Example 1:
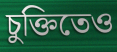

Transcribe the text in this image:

চুক্তিতেও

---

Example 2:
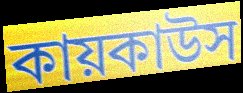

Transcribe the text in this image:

কায়কাউস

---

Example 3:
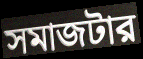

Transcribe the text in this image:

সমাজটার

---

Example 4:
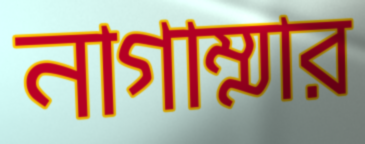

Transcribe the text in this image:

নাগাম্মার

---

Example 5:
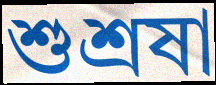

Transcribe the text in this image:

শুশ্রষা